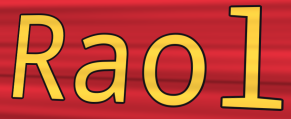
Raol